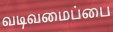
வடிவமைப்பை